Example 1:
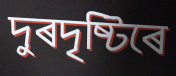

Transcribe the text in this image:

দুৰদৃষ্টিৰে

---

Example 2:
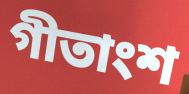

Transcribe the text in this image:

গীতাংশ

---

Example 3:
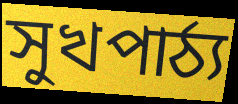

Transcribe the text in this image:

সুখপাঠ্য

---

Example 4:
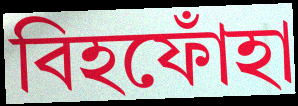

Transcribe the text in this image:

বিহফোঁহা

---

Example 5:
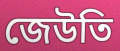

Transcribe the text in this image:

জেউতি